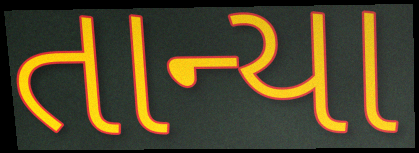
તાન્યા